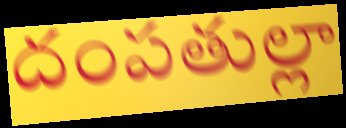
దంపతుల్లా